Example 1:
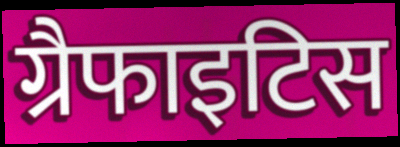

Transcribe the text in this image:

ग्रैफाइटिस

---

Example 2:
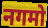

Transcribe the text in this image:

नगमो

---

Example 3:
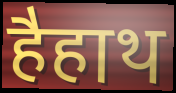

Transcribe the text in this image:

हैहाथ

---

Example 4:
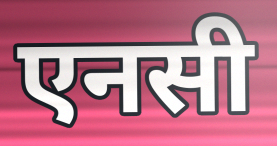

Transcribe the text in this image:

एनसी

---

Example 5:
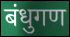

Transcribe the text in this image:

बंधुगण